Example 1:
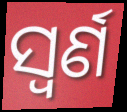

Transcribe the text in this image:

ସ୍ୱର୍ଣ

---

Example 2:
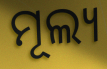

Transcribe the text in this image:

ମୂଲ୍ୟ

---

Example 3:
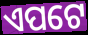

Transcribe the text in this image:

ଏପଟେ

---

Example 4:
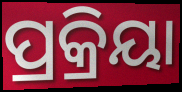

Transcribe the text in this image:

ପ୍ରକ୍ରିୟା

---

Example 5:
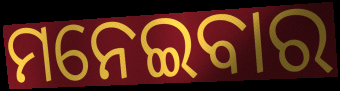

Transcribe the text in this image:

ମନେଇବାର